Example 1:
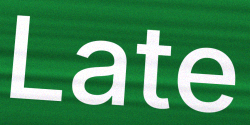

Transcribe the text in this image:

Late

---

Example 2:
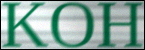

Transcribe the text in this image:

KOH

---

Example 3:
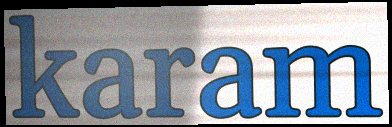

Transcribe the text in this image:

karam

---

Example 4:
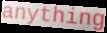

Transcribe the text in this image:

anything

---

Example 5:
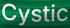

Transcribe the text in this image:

Cystic